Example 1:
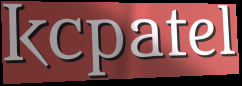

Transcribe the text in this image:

kcpatel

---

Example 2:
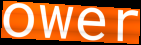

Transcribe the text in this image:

ower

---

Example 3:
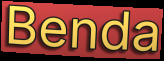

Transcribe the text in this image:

Benda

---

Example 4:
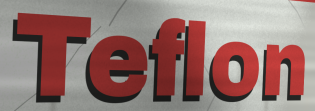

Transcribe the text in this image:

Teflon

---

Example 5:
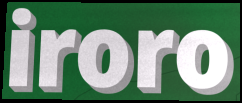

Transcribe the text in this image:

iroro